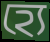
হ্যে